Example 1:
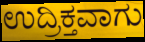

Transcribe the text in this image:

ಉದ್ರಿಕ್ತವಾಗು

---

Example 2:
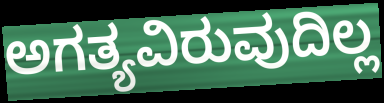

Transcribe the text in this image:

ಅಗತ್ಯವಿರುವುದಿಲ್ಲ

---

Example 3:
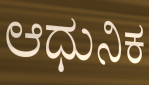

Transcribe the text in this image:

ಆಧುನಿಕ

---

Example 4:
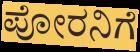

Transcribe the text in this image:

ಪೋರನಿಗೆ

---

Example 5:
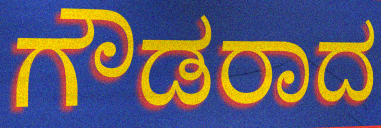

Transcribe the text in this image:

ಗೌಡರಾದ